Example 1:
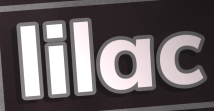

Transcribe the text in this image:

lilac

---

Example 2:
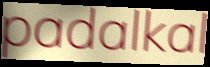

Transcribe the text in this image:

padalkal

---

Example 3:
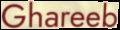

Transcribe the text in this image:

Ghareeb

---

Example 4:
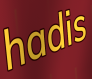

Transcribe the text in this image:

hadis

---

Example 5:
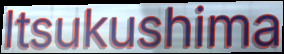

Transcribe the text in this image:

Itsukushima